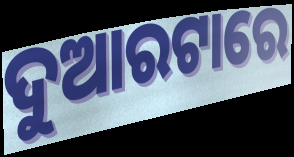
ଦୁଆରଟାରେ